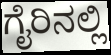
ಗೈರಿನಲ್ಲಿ